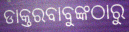
ଡାକ୍ତରବାବୁଙ୍କଠାରୁ